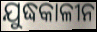
ଯୁଦ୍ଧକାଳୀନ